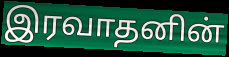
இரவாதனின்